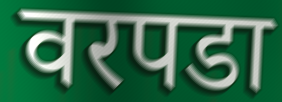
वरपडा